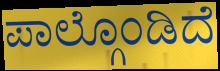
ಪಾಲ್ಗೊಂಡಿದೆ